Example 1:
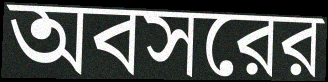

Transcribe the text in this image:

অবসরের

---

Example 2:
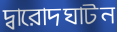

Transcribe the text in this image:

দ্বারোদঘাটন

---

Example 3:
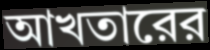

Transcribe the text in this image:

আখতারের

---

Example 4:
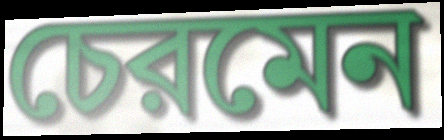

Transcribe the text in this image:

চেরমেন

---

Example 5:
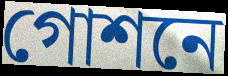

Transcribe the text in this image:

গোশনে